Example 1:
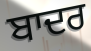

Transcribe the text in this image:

ਬਾਦਰ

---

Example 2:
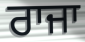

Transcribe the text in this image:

ਰਾਜਾ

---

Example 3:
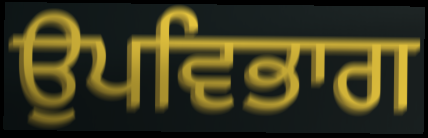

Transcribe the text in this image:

ਉਪਵਿਭਾਗ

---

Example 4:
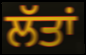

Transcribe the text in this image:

ਲੱਤਾਂ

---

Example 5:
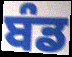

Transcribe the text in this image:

ਬੰਡ